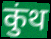
कुंथ